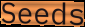
Seeds